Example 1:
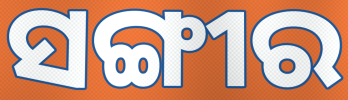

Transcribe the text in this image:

ସଙ୍ଗୀର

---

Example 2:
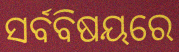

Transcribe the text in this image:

ସର୍ବବିଷୟରେ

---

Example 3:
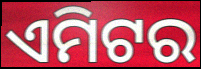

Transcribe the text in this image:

ଏମିଟର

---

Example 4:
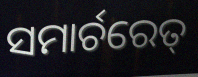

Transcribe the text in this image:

ସମାର୍ଚରେତ୍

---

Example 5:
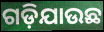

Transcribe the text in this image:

ଗଡ଼ିଯାଉଛ